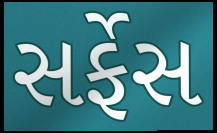
સર્ફેસ